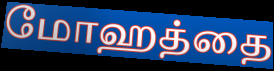
மோஹத்தை